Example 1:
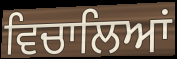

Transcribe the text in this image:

ਵਿਚਾਲਿਆਂ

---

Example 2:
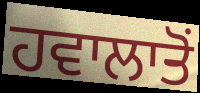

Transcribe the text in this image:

ਹਵਾਲਾਤੋਂ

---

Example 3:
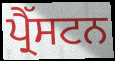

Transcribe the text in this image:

ਪ੍ਰੈੱਸਟਨ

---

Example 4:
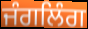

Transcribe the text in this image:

ਜੰਗਲਿੰਗ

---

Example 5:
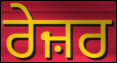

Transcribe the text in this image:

ਰੇਜ਼ਰ